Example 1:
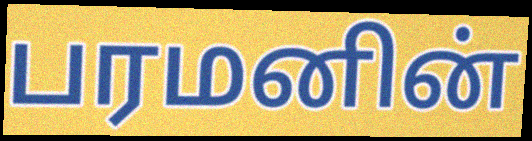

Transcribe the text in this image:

பரமனின்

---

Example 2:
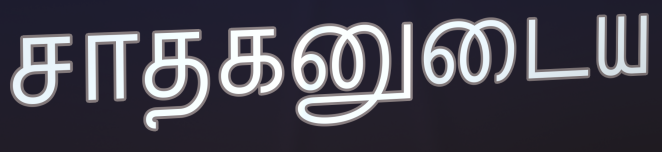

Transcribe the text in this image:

சாதகனுடைய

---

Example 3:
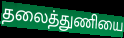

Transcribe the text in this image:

தலைத்துணியை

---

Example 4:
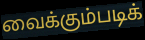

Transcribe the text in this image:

வைக்கும்படிக்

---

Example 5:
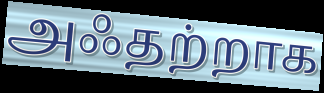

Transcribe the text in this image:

அஃதற்றாக